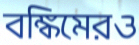
বঙ্কিমেরও